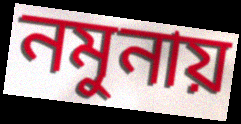
নমুনায়